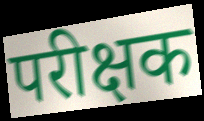
परीक्षक